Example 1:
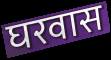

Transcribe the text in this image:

घरवास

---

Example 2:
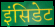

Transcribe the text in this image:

इंसिडेट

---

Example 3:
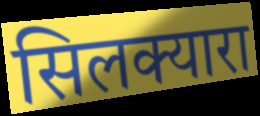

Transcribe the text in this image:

सिलक्यारा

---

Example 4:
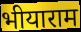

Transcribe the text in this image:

भीयाराम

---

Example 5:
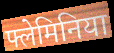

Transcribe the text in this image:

फ्लेमिनिया